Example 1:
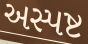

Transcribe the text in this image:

અસ્પષ્ટ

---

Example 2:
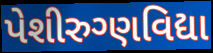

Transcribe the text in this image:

પેશીરુગ્ણવિદ્યા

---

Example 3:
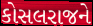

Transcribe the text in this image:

કોસલરાજને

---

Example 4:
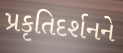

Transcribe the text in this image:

પ્રકૃતિદર્શનને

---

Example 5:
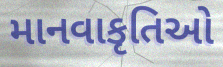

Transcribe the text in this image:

માનવાકૃતિઓ